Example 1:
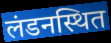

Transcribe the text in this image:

लंडनस्थित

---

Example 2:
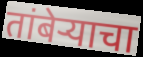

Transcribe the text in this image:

तांबेऱ्याचा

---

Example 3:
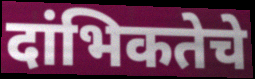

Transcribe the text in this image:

दांभिकतेचे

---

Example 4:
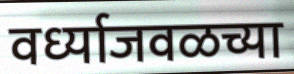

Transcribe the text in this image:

वर्ध्याजवळच्या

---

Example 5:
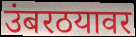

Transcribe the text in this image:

उंबरठयावर